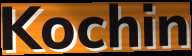
Kochin